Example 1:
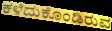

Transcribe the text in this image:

ಕಳೆದುಕೊಂಡಿರುವ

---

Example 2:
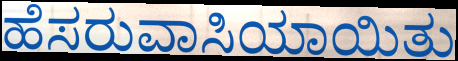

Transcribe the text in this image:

ಹೆಸರುವಾಸಿಯಾಯಿತು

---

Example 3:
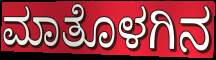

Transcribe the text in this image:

ಮಾತೊಳಗಿನ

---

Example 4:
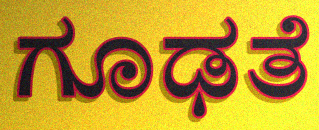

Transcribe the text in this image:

ಗೂಢತೆ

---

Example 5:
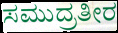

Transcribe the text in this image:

ಸಮುದ್ರತೀರ